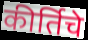
कीर्तिचे